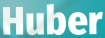
Huber